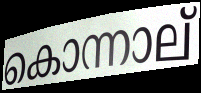
കൊന്നാല്